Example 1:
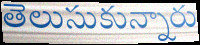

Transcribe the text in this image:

తెలుసుకున్నారు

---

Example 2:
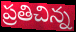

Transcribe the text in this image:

ప్రతిచిన్న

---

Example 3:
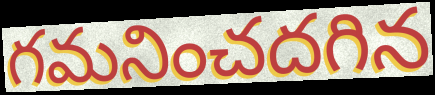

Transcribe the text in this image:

గమనించదగిన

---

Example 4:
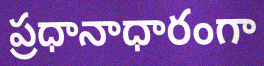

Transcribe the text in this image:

ప్రధానాధారంగా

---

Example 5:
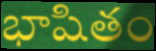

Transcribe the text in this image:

భాషితం